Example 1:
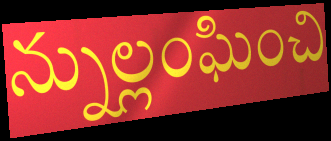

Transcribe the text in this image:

న్నుల్లంఘించి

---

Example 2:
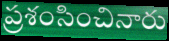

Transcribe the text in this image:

ప్రశంసించినారు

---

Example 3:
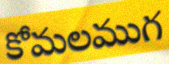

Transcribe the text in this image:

కోమలముగ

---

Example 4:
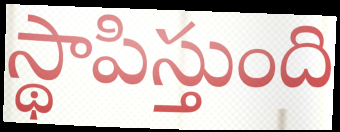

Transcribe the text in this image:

స్థాపిస్తుంది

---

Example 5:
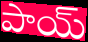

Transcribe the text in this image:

పాయ్